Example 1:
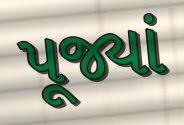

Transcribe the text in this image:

પૂજ્યાં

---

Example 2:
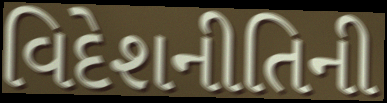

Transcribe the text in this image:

વિદેશનીતિની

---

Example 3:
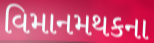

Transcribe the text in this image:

વિમાનમથકના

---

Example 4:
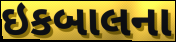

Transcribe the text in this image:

ઇકબાલના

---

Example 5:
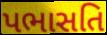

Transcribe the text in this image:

પભાસતિ